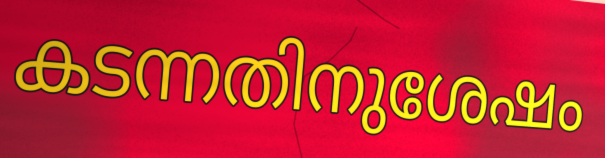
കടന്നതിനുശേഷം